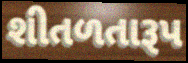
શીતળતારૂપ